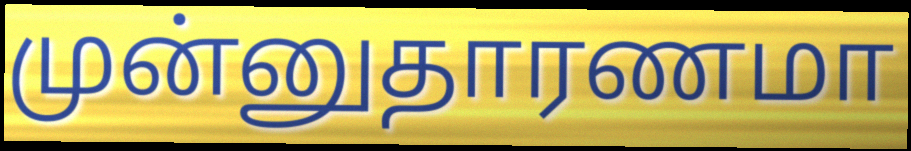
முன்னுதாரணமா